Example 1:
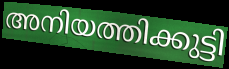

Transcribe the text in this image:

അനിയത്തിക്കുട്ടി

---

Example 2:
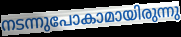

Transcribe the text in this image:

നടന്നുപോകാമായിരുന്നു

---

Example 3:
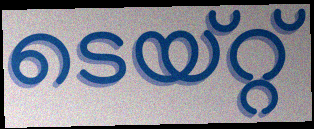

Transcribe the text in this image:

ടെയ്റ്റ്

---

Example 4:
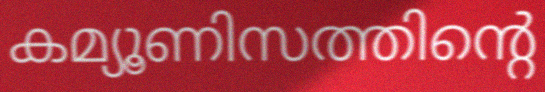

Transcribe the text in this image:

കമ്യൂണിസത്തിന്റെ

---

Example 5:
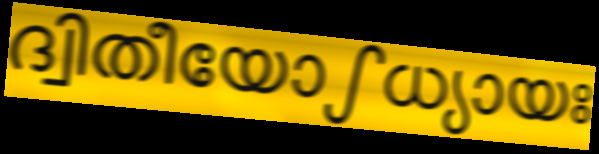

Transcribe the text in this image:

ദ്വിതീയോഽധ്യായഃ